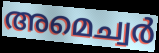
അമെച്വർ